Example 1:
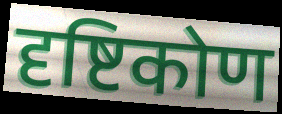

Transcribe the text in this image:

दृष्टिकोण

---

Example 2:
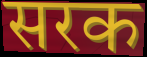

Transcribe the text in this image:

सरक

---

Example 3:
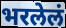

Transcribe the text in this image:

भरलेलं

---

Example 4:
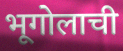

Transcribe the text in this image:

भूगोलाची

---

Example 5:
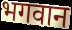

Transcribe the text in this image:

भगवान